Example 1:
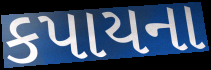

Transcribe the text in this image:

કપાયના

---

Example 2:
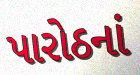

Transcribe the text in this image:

પારોઠનાં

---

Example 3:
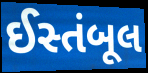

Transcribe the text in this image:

ઈસ્તંબૂલ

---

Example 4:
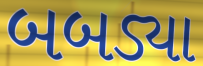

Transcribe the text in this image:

બબડ્યા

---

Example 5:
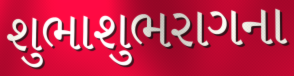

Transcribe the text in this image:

શુભાશુભરાગના